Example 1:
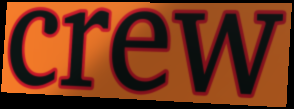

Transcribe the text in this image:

crew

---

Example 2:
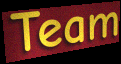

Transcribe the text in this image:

Team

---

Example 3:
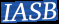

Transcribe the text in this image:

IASB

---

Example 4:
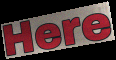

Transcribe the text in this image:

Here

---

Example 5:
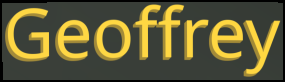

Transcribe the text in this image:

Geoffrey